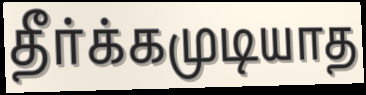
தீர்க்கமுடியாத